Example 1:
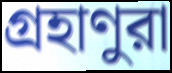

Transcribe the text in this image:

গ্রহাণুরা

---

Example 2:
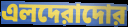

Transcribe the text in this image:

এলদেরাদোর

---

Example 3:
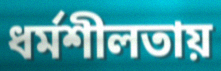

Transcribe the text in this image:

ধর্মশীলতায়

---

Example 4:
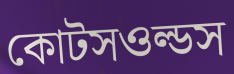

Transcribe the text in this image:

কোটসওল্ডস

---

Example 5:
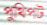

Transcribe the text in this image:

পুথিপট